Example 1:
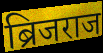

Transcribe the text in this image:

ब्रिजराज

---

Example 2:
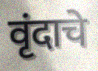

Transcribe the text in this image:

वृंदाचे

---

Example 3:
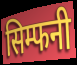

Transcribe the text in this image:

सिम्फनी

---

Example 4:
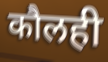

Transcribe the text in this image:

कौलही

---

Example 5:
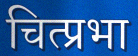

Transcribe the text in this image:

चित्प्रभा